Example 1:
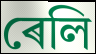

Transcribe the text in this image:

ৰেলি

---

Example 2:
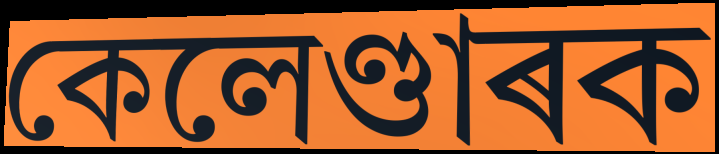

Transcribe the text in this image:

কেলেণ্ডাৰক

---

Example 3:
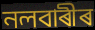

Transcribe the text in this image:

নলবাৰীৰ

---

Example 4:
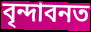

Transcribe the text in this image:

বৃন্দাবনত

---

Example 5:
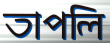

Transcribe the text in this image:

তাপলি